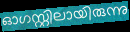
ഓഗസ്റ്റിലായിരുന്നു